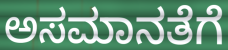
ಅಸಮಾನತೆಗೆ